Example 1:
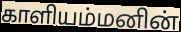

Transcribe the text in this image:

காளியம்மனின்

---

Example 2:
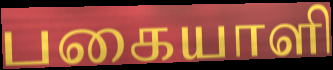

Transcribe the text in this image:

பகையாளி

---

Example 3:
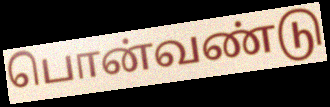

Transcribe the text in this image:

பொன்வண்டு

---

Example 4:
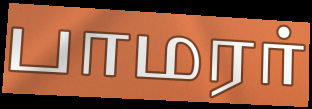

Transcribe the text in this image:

பாமரர்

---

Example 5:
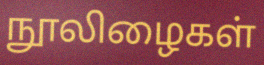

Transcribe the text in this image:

நூலிழைகள்